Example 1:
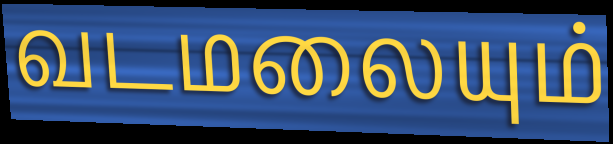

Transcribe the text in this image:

வடமலையும்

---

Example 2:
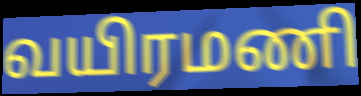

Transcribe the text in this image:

வயிரமணி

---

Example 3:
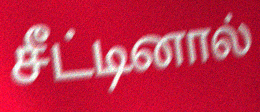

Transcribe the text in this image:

சீட்டினால்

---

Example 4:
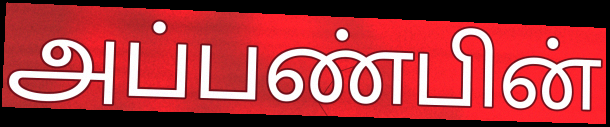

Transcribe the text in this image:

அப்பண்பின்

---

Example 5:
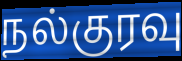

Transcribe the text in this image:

நல்குரவு